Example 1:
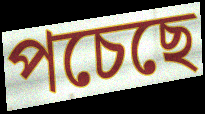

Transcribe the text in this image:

পচেছে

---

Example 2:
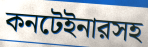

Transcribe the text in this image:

কনটেইনারসহ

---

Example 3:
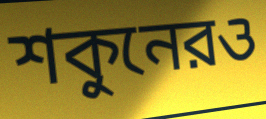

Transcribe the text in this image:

শকুনেরও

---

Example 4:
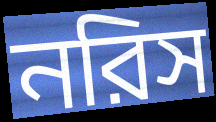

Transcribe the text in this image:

নরিস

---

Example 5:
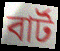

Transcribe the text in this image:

বার্ট